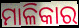
ମାଳିକାର